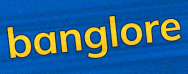
banglore